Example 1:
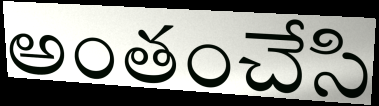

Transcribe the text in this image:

అంతంచేసి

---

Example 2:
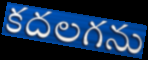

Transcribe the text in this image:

కదలగను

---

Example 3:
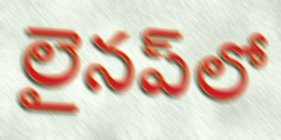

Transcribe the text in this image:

లైనప్‌లో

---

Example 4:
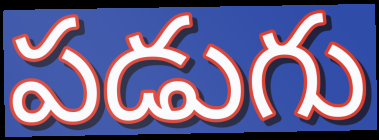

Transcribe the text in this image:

పడుగు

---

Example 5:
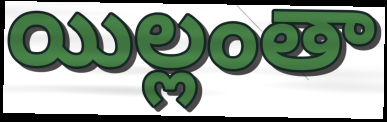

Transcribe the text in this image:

యిల్లంతా